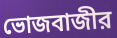
ভোজবাজীর